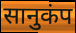
सानुकंप